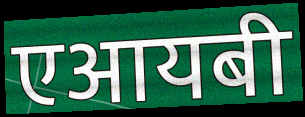
एआयबी